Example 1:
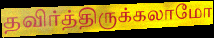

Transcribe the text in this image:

தவிர்த்திருக்கலாமோ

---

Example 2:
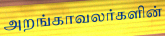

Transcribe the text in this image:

அறங்காவலர்களின்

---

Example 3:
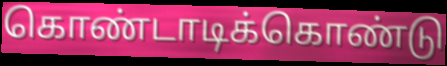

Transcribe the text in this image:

கொண்டாடிக்கொண்டு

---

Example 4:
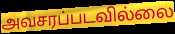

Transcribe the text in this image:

அவசரப்படவில்லை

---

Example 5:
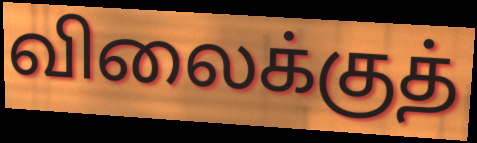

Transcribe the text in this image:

விலைக்குத்